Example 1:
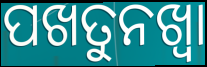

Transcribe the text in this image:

ପଖତୁନଖ୍ୱା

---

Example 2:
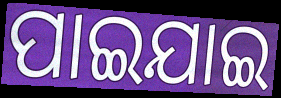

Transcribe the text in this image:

ପାଇଯାଇ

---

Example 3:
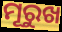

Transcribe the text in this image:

ମୂରୁଖ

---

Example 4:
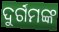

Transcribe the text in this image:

ଦୁର୍ଗମଙ୍କ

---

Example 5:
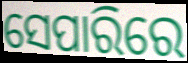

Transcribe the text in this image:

ସେପାରିରେ